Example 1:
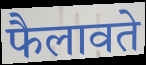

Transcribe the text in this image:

फैलावते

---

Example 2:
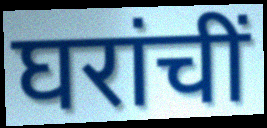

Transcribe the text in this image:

घरांचीं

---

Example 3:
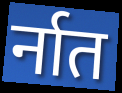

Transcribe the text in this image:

र्नात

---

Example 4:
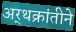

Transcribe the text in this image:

अर्थक्रांतीने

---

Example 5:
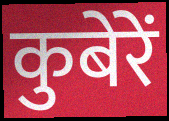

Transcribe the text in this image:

कुबेरें